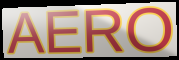
AERO